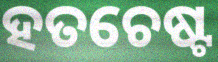
ହତଚେଷ୍ଟ